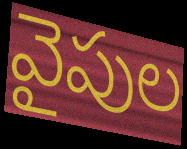
వైపుల